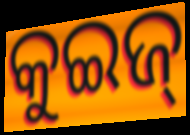
କୁଇଜ୍